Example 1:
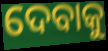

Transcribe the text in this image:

ଦେବାକୁ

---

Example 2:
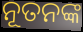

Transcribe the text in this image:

ନୂତନଙ୍କ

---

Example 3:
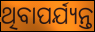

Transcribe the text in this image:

ଥିବାପର୍ଯ୍ୟନ୍ତ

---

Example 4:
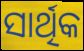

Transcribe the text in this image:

ସାର୍ଥିକ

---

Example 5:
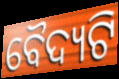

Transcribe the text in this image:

ବୈଦ୍ୟଟି